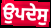
ਉਪਦੇਸੁ